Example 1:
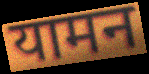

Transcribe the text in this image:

यामन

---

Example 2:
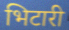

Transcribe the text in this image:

भिटारी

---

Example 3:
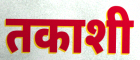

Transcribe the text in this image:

तकाशी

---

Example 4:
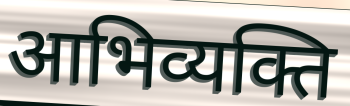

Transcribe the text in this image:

आभिव्यक्ति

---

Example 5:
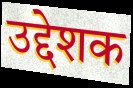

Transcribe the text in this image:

उद्देशक